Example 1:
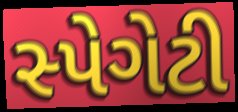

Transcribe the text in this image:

સ્પેગેટી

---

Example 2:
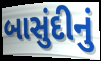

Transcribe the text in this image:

બાસુંદીનું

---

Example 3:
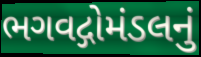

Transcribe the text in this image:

ભગવદ્ગોમંડલનું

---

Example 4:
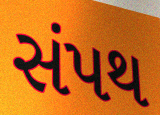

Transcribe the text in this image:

સંપથ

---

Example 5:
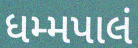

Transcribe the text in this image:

ધમ્મપાલં